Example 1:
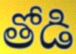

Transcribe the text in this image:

తోడి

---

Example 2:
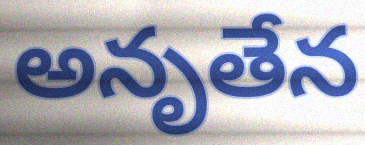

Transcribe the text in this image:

అనృతేన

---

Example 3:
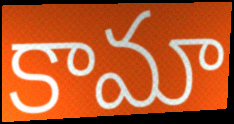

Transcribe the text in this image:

కామా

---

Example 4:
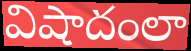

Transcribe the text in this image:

విషాదంలా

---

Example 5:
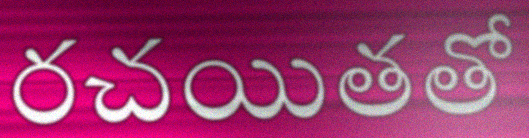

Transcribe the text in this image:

రచయితతో